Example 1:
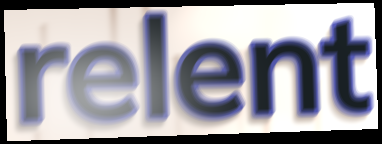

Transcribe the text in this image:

relent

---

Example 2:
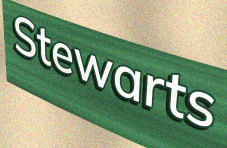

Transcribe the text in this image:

Stewarts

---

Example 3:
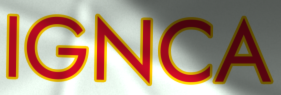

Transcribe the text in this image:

IGNCA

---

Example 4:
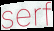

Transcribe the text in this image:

serf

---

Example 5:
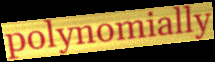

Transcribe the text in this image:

polynomially